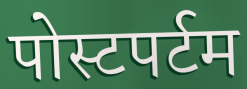
पोस्टपर्टम